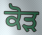
ਕੋੜ